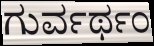
ಗುರ್ವರ್ಥಂ